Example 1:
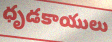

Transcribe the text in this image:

ధృడకాయులు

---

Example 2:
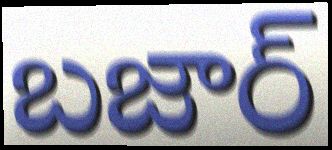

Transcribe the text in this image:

బజార్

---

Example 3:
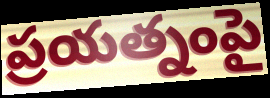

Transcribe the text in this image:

ప్రయత్నంపై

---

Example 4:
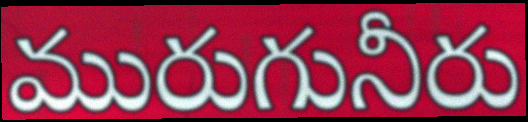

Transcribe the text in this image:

మురుగునీరు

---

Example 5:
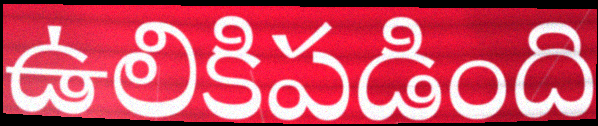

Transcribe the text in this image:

ఉలికిపడింది